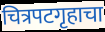
चित्रपटगृहाचा